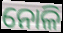
ନୋଳି